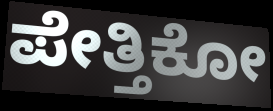
ಪೇತ್ತಿಕೋ